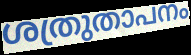
ശത്രുതാപനം